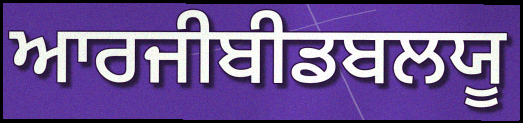
ਆਰਜੀਬੀਡਬਲਯੂ